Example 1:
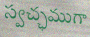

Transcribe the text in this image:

స్వచ్ఛముగా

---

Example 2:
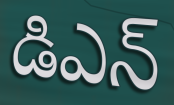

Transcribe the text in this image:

డిఎన్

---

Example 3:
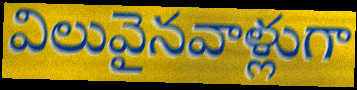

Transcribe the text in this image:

విలువైనవాళ్లుగా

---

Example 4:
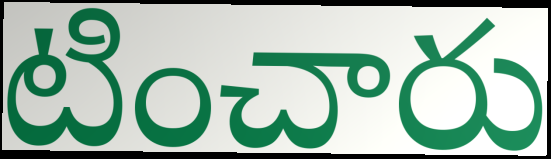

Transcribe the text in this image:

టించారు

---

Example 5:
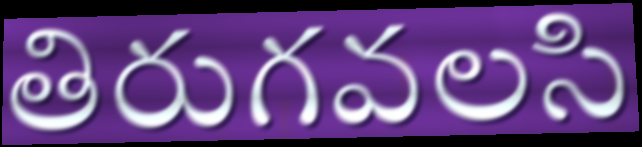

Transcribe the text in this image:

తిరుగవలసి